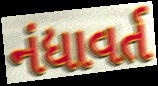
નંદ્યાવર્ત